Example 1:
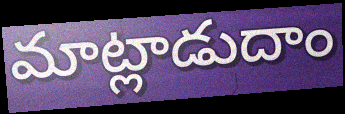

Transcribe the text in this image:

మాట్లాడుదాం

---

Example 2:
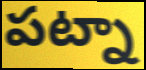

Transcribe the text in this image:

పట్నా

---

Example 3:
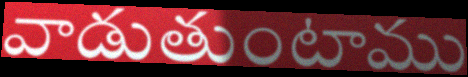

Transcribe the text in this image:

వాడుతుంటాము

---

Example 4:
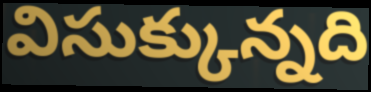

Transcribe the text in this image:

విసుక్కున్నది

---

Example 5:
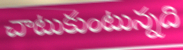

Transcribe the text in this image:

చాటుకుంటున్నది